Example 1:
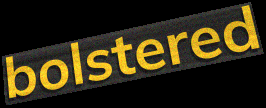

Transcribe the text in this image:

bolstered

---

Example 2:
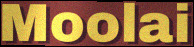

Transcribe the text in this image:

Moolai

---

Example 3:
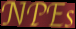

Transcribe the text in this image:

NPEs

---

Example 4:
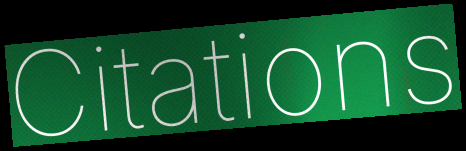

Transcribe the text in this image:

Citations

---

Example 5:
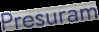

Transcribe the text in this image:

Presuram